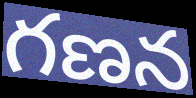
గణన